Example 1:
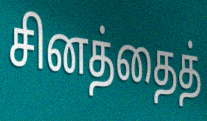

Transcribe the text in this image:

சினத்தைத்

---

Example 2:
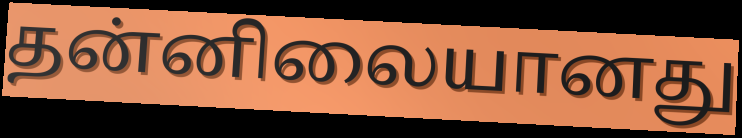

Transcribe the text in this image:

தன்னிலையானது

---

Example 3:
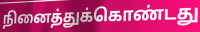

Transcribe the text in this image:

நினைத்துக்கொண்டது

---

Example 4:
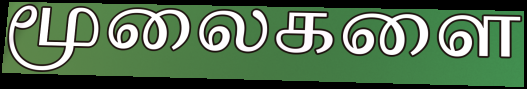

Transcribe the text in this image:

மூலைகளை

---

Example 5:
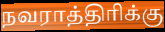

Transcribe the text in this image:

நவராத்திரிக்கு